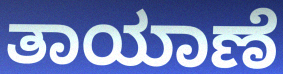
ತಾಯಾಣೆ